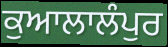
ਕੁਆਲਾਲੰਪੁਰ